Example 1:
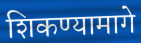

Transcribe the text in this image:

शिकण्यामागे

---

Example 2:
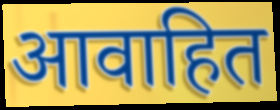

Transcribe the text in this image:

आवाहित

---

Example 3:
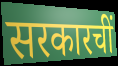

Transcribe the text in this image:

सरकारचीं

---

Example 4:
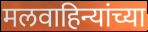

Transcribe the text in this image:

मलवाहिन्यांच्या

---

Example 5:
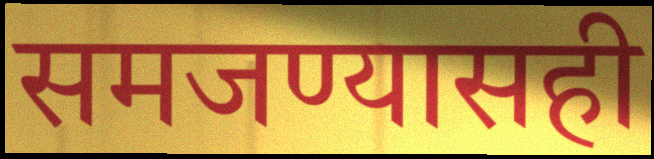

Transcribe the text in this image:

समजण्यासही